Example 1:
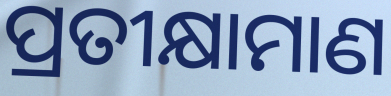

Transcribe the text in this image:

ପ୍ରତୀକ୍ଷାମାଣ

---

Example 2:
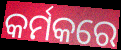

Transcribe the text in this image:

କର୍ମକରେ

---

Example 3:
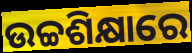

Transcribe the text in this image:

ଉଚ୍ଚଶିକ୍ଷାରେ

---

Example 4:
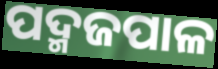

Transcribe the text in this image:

ପଦ୍ମଜପାଳ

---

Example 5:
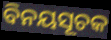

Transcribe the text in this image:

ବିନୟସୂଚକ